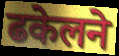
ढकेलने